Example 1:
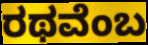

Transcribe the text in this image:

ರಥವೆಂಬ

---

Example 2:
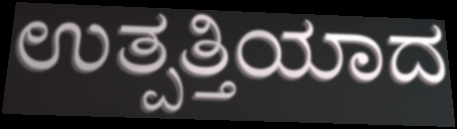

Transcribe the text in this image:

ಉತ್ಪತ್ತಿಯಾದ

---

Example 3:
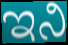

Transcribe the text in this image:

ಇನಿ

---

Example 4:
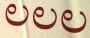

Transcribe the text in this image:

ಲಲಲ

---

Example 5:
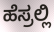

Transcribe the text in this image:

ಹೆಸ್ರಲ್ಲಿ